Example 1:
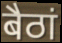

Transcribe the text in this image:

बैठां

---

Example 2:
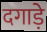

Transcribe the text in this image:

दगाड़े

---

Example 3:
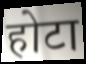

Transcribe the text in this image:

होटा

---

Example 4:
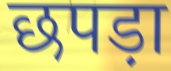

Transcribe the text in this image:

छपड़ा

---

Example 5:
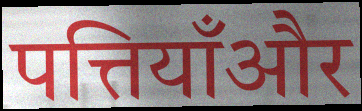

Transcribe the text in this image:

पत्तियाँऔर